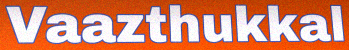
Vaazthukkal